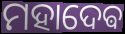
ମହାଦେଵ